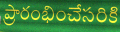
ప్రారంభించేసరికి